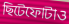
ছিটেফোটাও